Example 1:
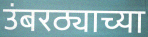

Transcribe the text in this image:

उंबरठ्याच्या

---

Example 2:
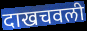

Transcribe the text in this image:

दाखचवली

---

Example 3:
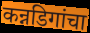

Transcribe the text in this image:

कन्नडिगांचा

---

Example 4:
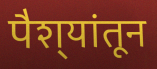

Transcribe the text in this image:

पैश्यांतून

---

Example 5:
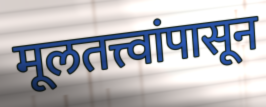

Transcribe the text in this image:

मूलतत्त्वांपासून